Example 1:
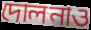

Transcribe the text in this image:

দোলনাও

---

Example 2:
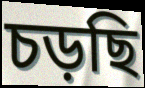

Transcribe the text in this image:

চড়ছি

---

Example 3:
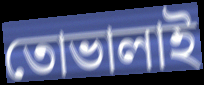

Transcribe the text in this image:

তোভালাই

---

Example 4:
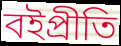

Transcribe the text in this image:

বইপ্রীতি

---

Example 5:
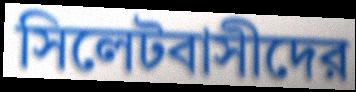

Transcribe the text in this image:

সিলেটবাসীদের